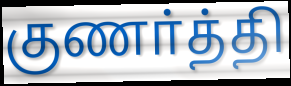
குணர்த்தி